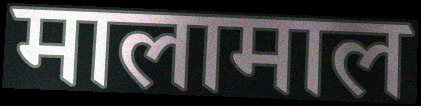
मालामाल